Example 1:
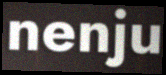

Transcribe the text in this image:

nenju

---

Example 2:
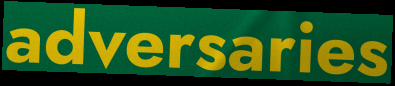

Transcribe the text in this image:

adversaries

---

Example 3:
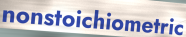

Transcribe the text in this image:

nonstoichiometric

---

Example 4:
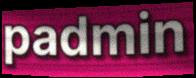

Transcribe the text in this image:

padmin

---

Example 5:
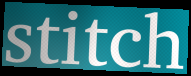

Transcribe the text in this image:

stitch